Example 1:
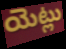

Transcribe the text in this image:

యెట్లు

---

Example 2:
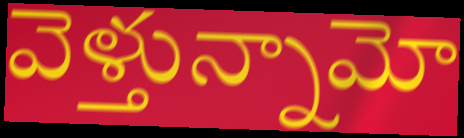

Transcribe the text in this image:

వెళ్తున్నామో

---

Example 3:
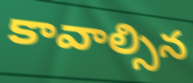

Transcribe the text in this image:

కావాల్సిన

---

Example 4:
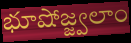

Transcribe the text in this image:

భూషోజ్జ్వలాం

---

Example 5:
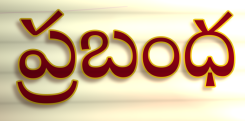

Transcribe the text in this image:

ప్రబంధ